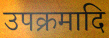
उपक्रमादि